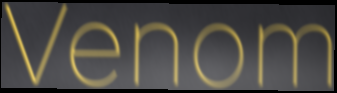
Venom